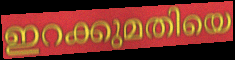
ഇറക്കുമതിയെ